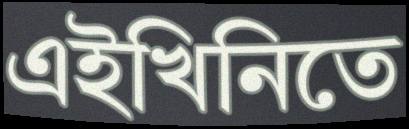
এইখিনিতে